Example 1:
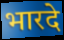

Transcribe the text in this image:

भारदे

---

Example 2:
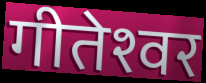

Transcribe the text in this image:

गीतेश्वर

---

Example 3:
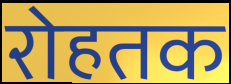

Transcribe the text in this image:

रोहतक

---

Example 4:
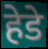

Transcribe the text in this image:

हेडे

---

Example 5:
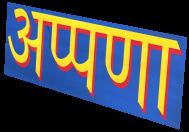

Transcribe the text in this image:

अप्पणा